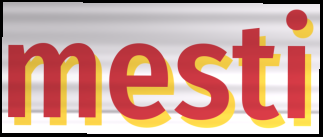
mesti